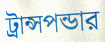
ট্রান্সপন্ডার